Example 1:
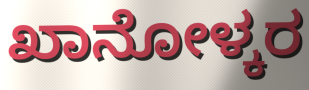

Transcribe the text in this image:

ಖಾನೋಳ್ಕರ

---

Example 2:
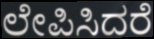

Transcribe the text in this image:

ಲೇಪಿಸಿದರೆ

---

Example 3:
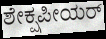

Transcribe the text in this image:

ಶೇಕ್ಷಪೀಯರ್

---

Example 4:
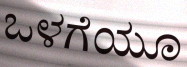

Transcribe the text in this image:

ಒಳಗೆಯೂ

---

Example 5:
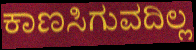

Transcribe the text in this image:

ಕಾಣಸಿಗುವದಿಲ್ಲ